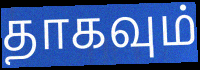
தாகவும்